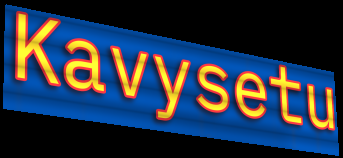
Kavysetu